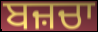
ਬਜ਼ਚਾ